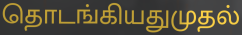
தொடங்கியதுமுதல்